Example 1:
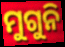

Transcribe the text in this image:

ମୁଗୁନି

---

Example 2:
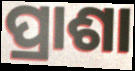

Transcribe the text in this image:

ପ୍ରାଶା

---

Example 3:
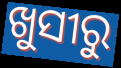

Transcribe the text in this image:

ଖୁସୀରୁ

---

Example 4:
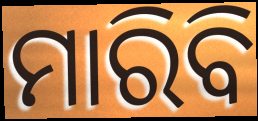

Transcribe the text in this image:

ମାରିବି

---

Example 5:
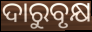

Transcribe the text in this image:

ଦାରୁବୃକ୍ଷ